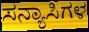
ಸನ್ಯಾಸಿಗಳ